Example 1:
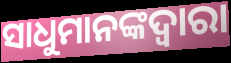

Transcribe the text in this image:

ସାଧୁମାନଙ୍କଦ୍ଵାରା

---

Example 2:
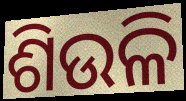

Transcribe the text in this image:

ଶିଉଳି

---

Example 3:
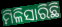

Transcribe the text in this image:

ମିଳିସାରିଛି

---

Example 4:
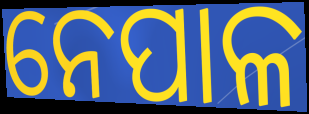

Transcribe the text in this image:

ନେପାଳ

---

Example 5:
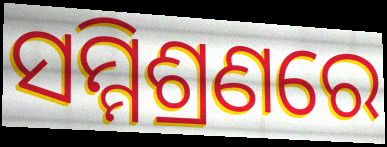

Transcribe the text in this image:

ସମ୍ମିଶ୍ରଣରେ